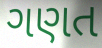
ગણત